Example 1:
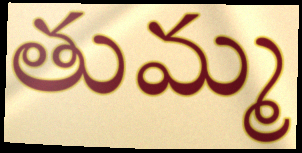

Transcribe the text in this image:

తుమ్మ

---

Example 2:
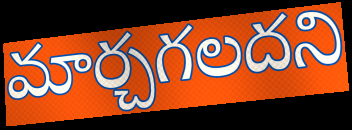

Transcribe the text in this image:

మార్చగలదని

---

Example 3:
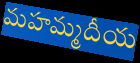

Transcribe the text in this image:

మహమ్మదీయ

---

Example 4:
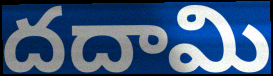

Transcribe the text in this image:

దదామి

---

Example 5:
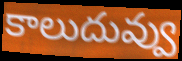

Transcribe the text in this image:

కాలుదువ్వు